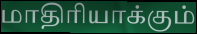
மாதிரியாக்கும்